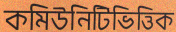
কমিউনিটিভিত্তিক